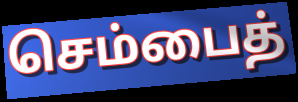
செம்பைத்